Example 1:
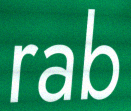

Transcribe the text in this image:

rab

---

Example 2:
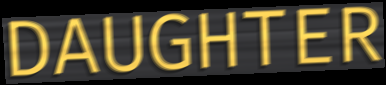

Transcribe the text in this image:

DAUGHTER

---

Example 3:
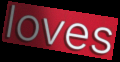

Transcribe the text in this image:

loves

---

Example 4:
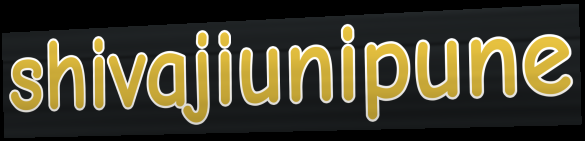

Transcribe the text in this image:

shivajiunipune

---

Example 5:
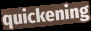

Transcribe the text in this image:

quickening